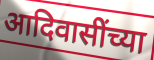
आदिवासींच्या